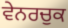
ਵੇਨਰਚੁਕ